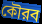
কৌরব